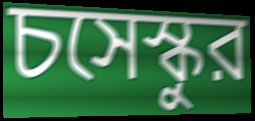
চসেস্কুর